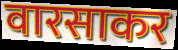
वारसाकर